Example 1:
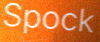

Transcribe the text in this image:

Spock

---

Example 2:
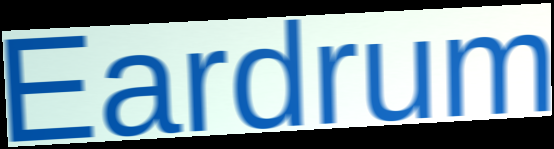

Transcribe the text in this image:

Eardrum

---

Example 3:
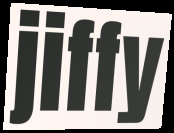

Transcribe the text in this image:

jiffy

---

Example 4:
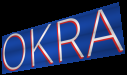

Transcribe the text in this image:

OKRA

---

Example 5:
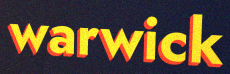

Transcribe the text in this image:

warwick